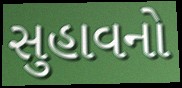
સુહાવનો